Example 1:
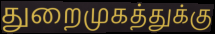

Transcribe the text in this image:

துறைமுகத்துக்கு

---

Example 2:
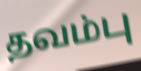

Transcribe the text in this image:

தவம்பு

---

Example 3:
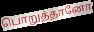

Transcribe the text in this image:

பொறுத்தானோ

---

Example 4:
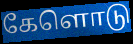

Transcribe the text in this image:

கேளொடு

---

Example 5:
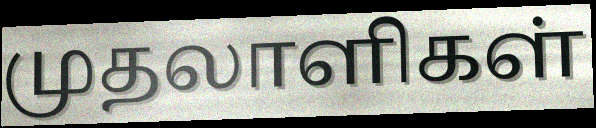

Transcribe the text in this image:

முதலாளிகள்